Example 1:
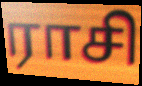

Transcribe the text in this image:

ராசி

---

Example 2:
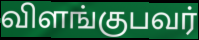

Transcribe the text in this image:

விளங்குபவர்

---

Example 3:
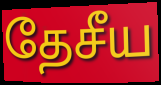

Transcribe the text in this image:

தேசீய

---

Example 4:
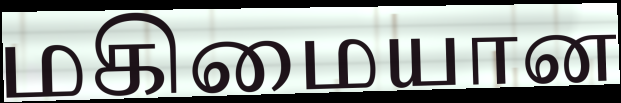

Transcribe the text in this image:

மகிமையான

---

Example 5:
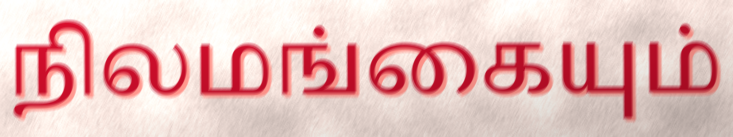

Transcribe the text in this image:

நிலமங்கையும்